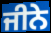
ਜੀਨੇ